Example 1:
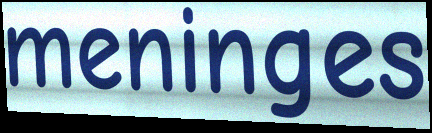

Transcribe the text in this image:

meninges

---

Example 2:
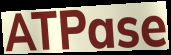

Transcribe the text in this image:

ATPase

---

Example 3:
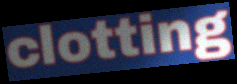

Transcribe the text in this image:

clotting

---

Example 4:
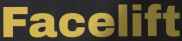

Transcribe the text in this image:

Facelift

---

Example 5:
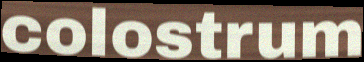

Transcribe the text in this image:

colostrum